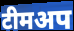
टीमअप